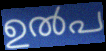
ഉൽപ